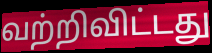
வற்றிவிட்டது